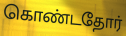
கொண்டதோர்